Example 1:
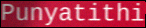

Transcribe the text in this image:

Punyatithi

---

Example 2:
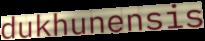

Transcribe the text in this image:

dukhunensis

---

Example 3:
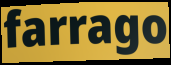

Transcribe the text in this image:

farrago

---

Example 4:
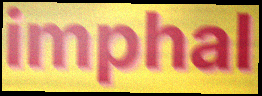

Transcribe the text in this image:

imphal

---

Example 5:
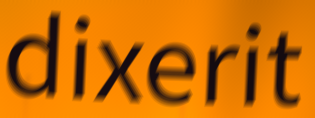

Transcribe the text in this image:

dixerit